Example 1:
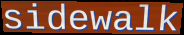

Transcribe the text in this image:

sidewalk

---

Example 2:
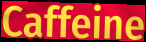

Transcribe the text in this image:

Caffeine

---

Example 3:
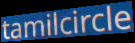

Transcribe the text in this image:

tamilcircle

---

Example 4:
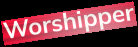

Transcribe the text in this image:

Worshipper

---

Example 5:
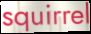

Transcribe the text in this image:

squirrel